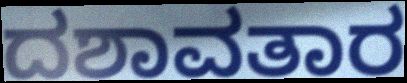
ದಶಾವತಾರ